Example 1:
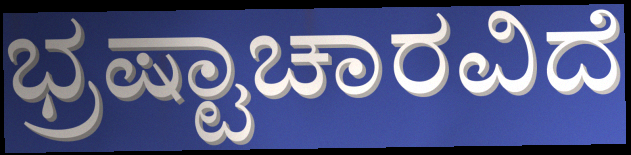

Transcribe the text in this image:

ಭ್ರಷ್ಟಾಚಾರವಿದೆ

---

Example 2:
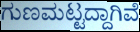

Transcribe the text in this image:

ಗುಣಮಟ್ಟದ್ದಾಗಿವೆ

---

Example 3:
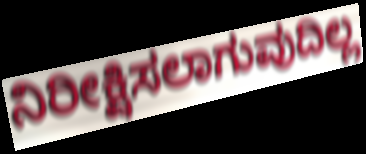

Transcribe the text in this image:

ನಿರೀಕ್ಷಿಸಲಾಗುವುದಿಲ್ಲ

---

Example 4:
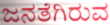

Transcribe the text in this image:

ಜನತೆಗಿರುವ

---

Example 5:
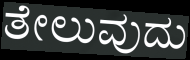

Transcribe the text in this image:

ತೇಲುವುದು